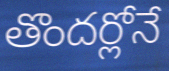
తొందర్లోనే